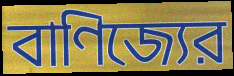
বাণিজ্যের